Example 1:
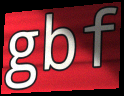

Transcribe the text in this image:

gbf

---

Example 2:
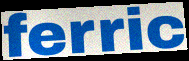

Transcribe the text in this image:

ferric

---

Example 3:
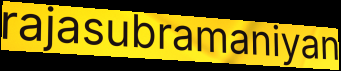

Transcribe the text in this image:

rajasubramaniyan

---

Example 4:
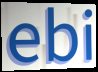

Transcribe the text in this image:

ebi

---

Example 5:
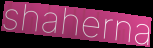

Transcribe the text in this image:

shaherna